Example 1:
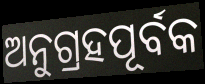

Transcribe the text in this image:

ଅନୁଗ୍ରହପୂର୍ବକ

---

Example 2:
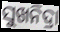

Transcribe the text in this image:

ସୁଖନିଦ୍ରା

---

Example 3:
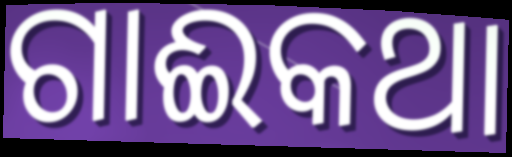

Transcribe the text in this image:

ଗାଈକଥା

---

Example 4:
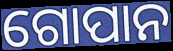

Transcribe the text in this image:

ଗୋପାନ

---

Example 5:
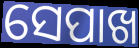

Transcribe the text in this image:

ସେପାଖ